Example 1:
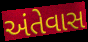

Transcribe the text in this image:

અંતેવાસ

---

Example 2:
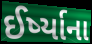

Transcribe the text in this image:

ઈર્ષ્યાના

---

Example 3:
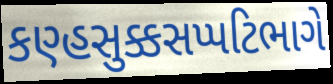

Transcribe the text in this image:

કણ્હસુક્કસપ્પટિભાગે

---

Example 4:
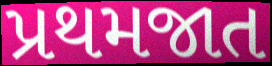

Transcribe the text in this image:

પ્રથમજાત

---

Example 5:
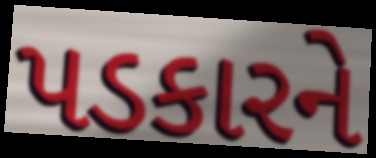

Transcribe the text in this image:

પડકારને